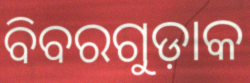
ବିବରଗୁଡ଼ାକ